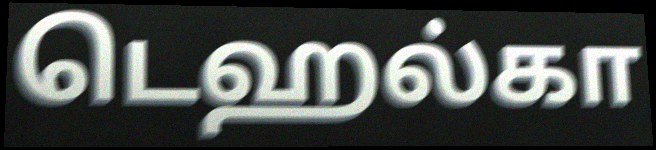
டெஹல்கா